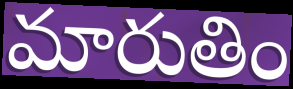
మారుతిం